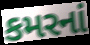
કમરનાં